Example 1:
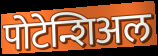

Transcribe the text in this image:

पोटेन्शिअल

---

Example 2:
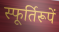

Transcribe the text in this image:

स्फूर्तिरूपें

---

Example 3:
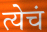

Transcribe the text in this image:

त्येचं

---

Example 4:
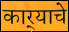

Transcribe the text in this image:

कार्याचे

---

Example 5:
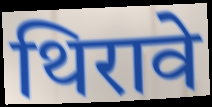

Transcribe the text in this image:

थिरावे